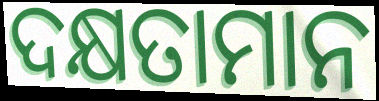
ଦକ୍ଷତାମାନ